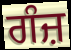
ਗੰਜ਼